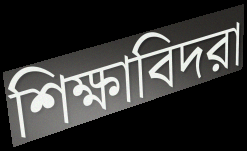
শিক্ষাবিদরা